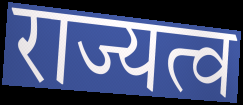
राज्यत्व